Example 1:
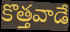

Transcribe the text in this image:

కొత్తవాడే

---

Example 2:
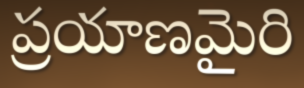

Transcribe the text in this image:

ప్రయాణమైరి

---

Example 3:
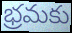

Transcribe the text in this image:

భ్రమకు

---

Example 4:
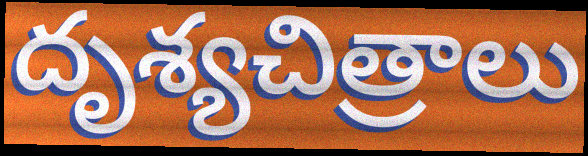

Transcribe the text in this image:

దృశ్యచిత్రాలు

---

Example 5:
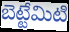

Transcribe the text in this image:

బెట్టేమిటి